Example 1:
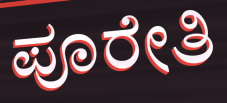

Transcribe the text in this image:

ಪೂರೇತಿ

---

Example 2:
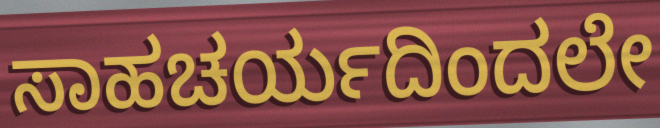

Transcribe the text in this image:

ಸಾಹಚರ್ಯದಿಂದಲೇ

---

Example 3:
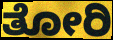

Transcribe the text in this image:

ತೋರಿ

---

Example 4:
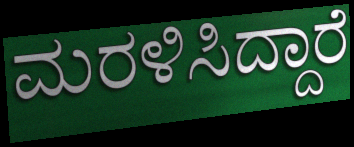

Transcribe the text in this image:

ಮರಳಿಸಿದ್ದಾರೆ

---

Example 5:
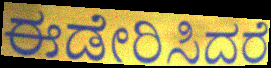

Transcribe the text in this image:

ಈಡೇರಿಸಿದರೆ